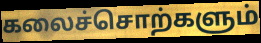
கலைச்சொற்களும்